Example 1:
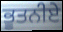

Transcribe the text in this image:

ਭੂਤਨੀਏ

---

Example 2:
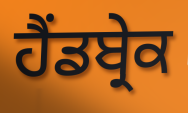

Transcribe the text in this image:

ਹੈਂਡਬ੍ਰੇਕ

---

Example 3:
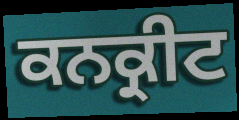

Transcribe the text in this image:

ਕਨਕ੍ਰੀਟ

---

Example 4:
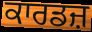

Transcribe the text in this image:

ਕਾਰਡਜ਼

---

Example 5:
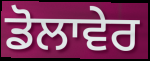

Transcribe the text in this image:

ਡੋਲਾਵੇਰ